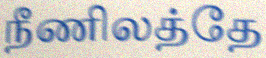
நீணிலத்தே